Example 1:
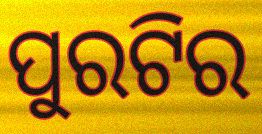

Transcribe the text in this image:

ପୁରଟିର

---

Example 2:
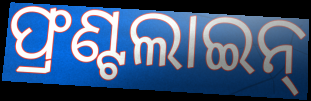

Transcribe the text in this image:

ଫ୍ରଣ୍ଟଲାଇନ୍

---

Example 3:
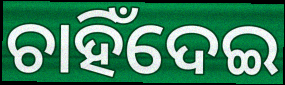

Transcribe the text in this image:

ଚାହିଁଦେଇ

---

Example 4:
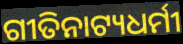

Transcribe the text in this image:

ଗୀତିନାଟ୍ୟଧର୍ମୀ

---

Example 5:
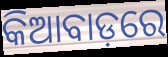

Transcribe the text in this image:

କିଆବାଡ଼ରେ